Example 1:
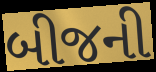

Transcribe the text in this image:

બીજની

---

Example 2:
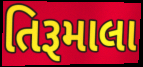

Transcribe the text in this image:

તિરૂમાલા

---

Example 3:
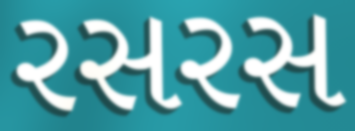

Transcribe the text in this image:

રસરસ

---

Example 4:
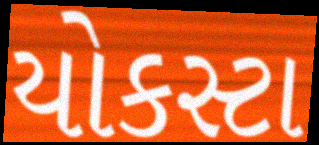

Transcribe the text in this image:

યોકસ્ટા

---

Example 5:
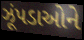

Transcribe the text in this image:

ઝૂંપડાઓને